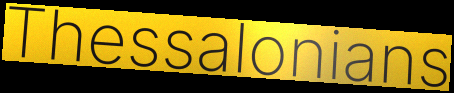
Thessalonians